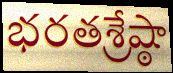
భరతశ్రేష్ఠా